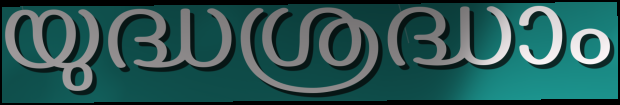
യുദ്ധശ്രദ്ധാം